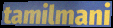
tamilmani